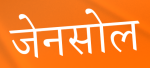
जेनसोल